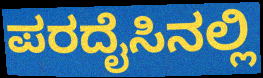
ಪರದೈಸಿನಲ್ಲಿ